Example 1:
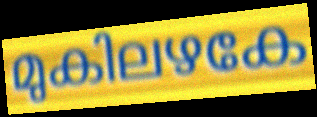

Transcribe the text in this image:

മുകിലഴകേ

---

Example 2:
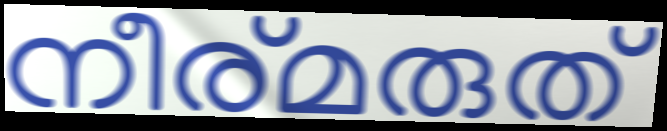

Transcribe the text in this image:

നീര്മരുത്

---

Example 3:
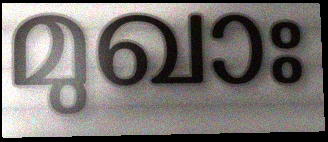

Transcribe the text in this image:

മുഖാഃ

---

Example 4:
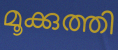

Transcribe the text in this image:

മൂക്കുത്തി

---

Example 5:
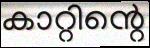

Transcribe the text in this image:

കാറ്റിന്റെ